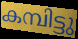
കമ്പിട്ടു